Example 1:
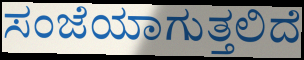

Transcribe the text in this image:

ಸಂಜೆಯಾಗುತ್ತಲಿದೆ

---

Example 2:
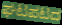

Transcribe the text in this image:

ಘಟಪಟದ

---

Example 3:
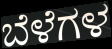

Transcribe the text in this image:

ಬೆಳೆಗಳ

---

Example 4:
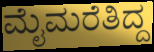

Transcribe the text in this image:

ಮೈಮರೆತಿದ್ದ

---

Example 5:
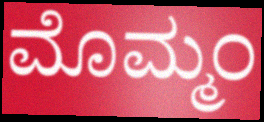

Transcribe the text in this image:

ಮೊಮ್ಮಂ